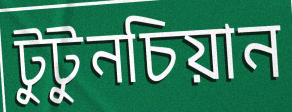
টুটুনচিয়ান